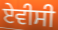
ਏਵੀਸੀ